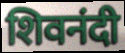
शिवनंदी